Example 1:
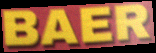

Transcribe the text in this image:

BAER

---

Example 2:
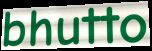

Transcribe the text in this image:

bhutto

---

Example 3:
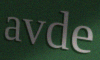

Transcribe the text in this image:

avde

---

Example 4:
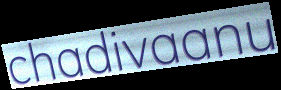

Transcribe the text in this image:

chadivaanu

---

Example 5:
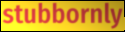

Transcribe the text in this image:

stubbornly